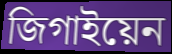
জিগাইয়েন